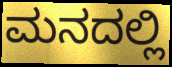
ಮನದಲ್ಲಿ